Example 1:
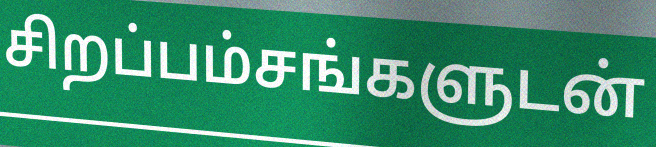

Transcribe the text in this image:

சிறப்பம்சங்களுடன்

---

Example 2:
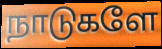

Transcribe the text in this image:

நாடுகளே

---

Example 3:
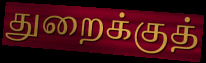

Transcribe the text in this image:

துறைக்குத்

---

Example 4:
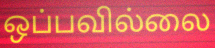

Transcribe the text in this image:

ஒப்பவில்லை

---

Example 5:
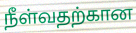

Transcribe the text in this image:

நீள்வதற்கான